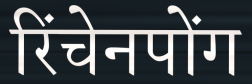
रिंचेनपोंग